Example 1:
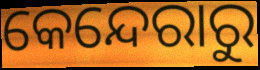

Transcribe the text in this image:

କେନ୍ଦେରାରୁ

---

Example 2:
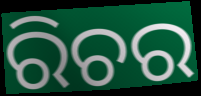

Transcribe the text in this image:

ରିଚର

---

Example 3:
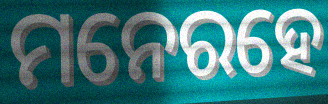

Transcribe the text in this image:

ମନେରହେ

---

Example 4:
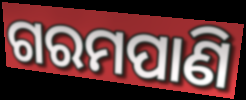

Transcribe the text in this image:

ଗରମପାଣି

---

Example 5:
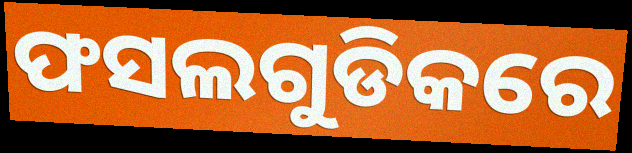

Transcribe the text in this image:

ଫସଲଗୁଡିକରେ